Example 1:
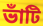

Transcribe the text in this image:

ভাঁটি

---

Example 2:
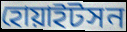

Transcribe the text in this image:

হোয়াইটসন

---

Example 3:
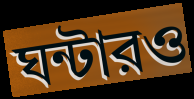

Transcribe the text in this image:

ঘন্টারও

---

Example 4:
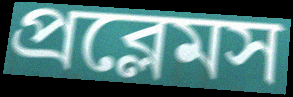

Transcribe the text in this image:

প্রব্লেমস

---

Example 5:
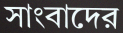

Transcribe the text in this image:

সাংবাদের